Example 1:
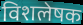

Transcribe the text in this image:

विशलेषक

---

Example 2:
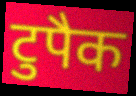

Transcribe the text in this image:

टुपैक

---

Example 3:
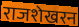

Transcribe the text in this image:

राजशेखरन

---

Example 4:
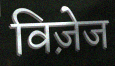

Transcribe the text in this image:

विज़ेज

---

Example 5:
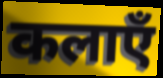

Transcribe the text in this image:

कलाएँ